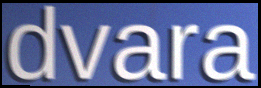
dvara